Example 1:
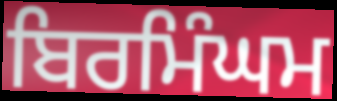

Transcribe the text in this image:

ਬਿਰਮਿੰਘਮ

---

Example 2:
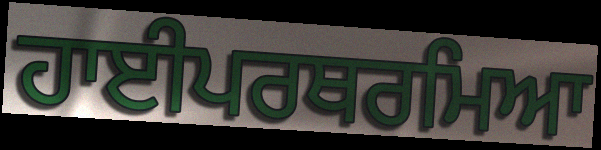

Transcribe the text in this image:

ਹਾਈਪਰਥਰਮਿਆ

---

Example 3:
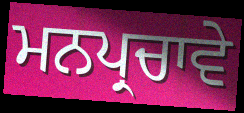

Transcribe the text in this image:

ਮਨਪ੍ਰਚਾਵੇ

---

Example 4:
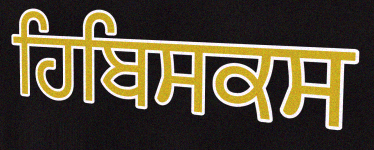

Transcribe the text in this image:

ਹਿਬਿਸਕਸ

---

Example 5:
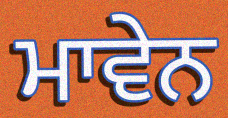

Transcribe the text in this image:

ਮਾਵੇਨ